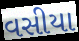
વસીયા